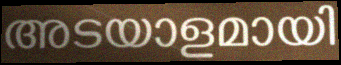
അടയാളമായി